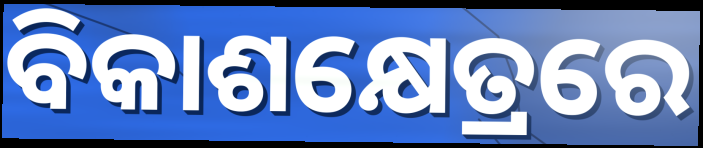
ବିକାଶକ୍ଷେତ୍ରରେ